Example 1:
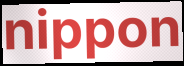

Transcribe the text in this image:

nippon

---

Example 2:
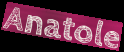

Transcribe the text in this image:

Anatole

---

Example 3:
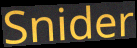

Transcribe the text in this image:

Snider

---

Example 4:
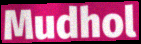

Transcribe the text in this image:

Mudhol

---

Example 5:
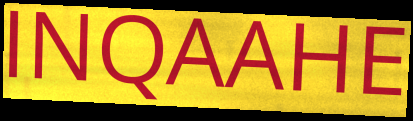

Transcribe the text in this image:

INQAAHE